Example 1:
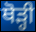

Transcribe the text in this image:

ਥੋਡ਼੍ਹੀ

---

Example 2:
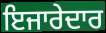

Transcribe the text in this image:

ਇਜਾਰੇਦਾਰ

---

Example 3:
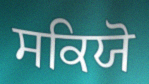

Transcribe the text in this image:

ਸਕਿਯੋ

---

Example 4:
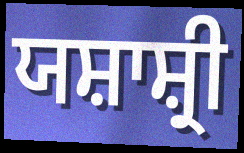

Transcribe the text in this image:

ਯਸ਼ਾਸ਼੍ਰੀ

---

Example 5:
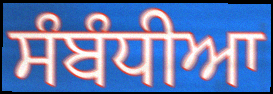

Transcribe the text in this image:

ਸੰਬੰਧੀਆ